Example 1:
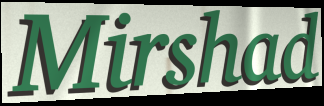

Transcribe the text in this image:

Mirshad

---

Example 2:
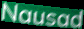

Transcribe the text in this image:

Nausad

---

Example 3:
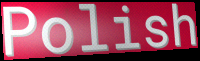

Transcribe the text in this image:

Polish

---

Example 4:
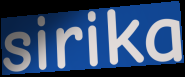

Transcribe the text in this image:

sirika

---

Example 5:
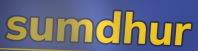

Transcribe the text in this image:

sumdhur